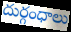
దుర్గంధాలు